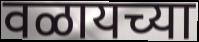
वळायच्या